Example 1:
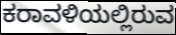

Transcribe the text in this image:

ಕರಾವಳಿಯಲ್ಲಿರುವ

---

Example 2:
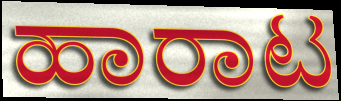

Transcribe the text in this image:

ಹಾರಾಟ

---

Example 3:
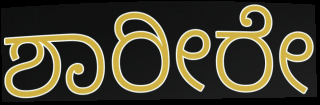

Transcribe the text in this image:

ಶಾರೀರೇ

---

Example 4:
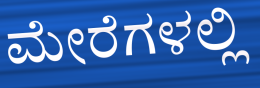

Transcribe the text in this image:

ಮೇರೆಗಳಲ್ಲಿ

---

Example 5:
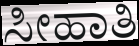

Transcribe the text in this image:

ಸೀಹಾತಿ